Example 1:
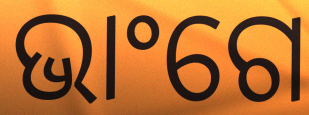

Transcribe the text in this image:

ଭାଂଗେ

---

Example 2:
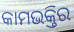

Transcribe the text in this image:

କାମଭକ୍ତିର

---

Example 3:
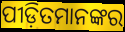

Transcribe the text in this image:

ପୀଡ଼ିତମାନଙ୍କର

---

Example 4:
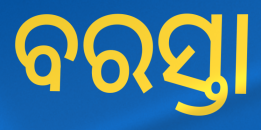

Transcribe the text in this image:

ବରସ୍ତା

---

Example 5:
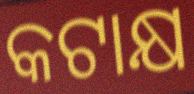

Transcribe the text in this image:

କଟାକ୍ଷ